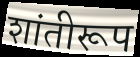
शांतीरूप